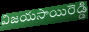
విజయసాయిరెడ్డి